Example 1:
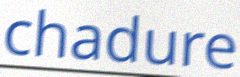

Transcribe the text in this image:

chadure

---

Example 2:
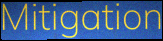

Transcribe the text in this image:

Mitigation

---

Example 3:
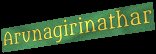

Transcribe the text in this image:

Arunagirinathar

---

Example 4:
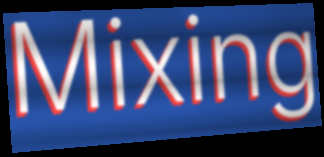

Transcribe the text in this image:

Mixing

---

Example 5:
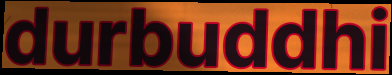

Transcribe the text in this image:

durbuddhi